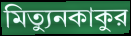
মিত্যুনকাকুর